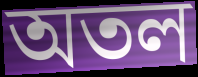
অতল